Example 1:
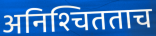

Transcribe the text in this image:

अनिश्चितताच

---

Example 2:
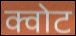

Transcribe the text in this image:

क्वोट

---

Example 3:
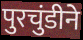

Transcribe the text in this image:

पुरचुंडीने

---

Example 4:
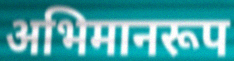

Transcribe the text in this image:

अभिमानरूप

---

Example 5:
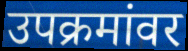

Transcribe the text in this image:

उपक्रमांवर